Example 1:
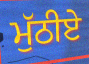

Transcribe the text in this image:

ਮੁੱਠੀਏ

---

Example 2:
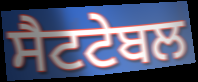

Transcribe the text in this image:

ਸੈਟਟੇਬਲ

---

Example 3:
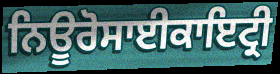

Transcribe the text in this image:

ਨਿਊਰੋਸਾਈਕਾਇਟ੍ਰੀ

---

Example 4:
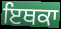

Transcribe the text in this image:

ਇਥਕਾ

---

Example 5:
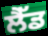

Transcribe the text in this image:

ਲੈੱਡ